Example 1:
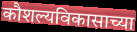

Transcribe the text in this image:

कौशल्यविकासाच्या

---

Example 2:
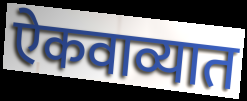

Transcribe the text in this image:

ऐकवाव्यात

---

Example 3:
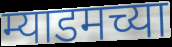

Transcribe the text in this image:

म्याडमच्या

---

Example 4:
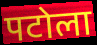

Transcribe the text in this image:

पटोला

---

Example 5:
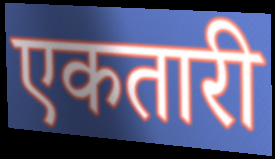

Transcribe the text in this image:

एकतारी